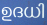
ഉദധി